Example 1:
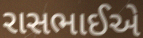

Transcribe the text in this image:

રાસભાઈએ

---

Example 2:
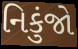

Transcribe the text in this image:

નિકુંજો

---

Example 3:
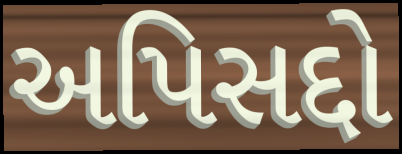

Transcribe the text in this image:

અપિસદ્દો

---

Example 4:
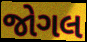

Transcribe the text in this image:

જોગલ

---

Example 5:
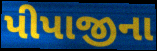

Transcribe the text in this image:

પીપાજીના